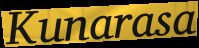
Kunarasa